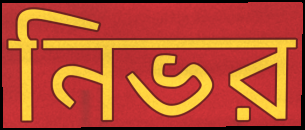
নিভর